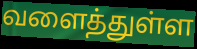
வளைத்துள்ள